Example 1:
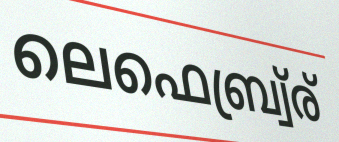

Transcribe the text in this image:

ലെഫെബ്ര്വ്ര്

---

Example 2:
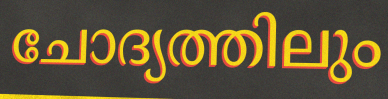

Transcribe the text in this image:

ചോദ്യത്തിലും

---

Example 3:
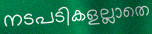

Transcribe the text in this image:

നടപടികളല്ലാതെ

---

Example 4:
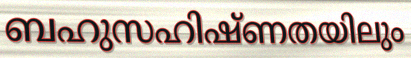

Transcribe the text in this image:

ബഹുസഹിഷ്ണതയിലും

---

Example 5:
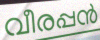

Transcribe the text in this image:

വീരപ്പൻ